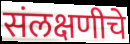
संलक्षणीचे